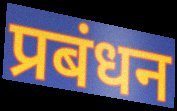
प्रबंधन